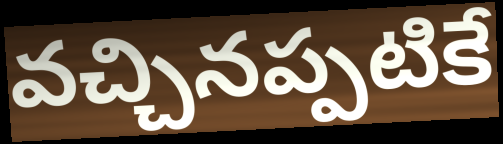
వచ్చినప్పటికే